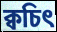
ক্বচিৎ